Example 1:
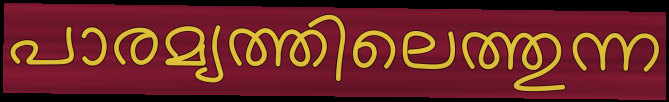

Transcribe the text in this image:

പാരമ്യത്തിലെത്തുന്ന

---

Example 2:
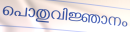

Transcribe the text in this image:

പൊതുവിജ്ഞാനം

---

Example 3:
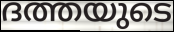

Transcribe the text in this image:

ദത്തയുടെ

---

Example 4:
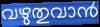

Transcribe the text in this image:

വഴുതുവാൻ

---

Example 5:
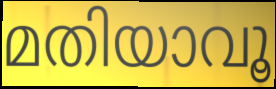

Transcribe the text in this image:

മതിയാവൂ